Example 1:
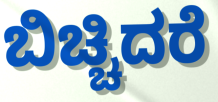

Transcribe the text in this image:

ಬಿಚ್ಚಿದರೆ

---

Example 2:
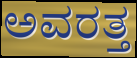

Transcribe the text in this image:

ಅವರತ್ತ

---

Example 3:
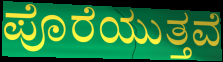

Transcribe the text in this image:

ಪೊರೆಯುತ್ತವೆ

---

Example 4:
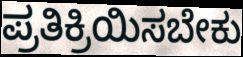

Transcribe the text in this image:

ಪ್ರತಿಕ್ರಿಯಿಸಬೇಕು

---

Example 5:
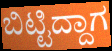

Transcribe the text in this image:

ಬಿಟ್ಟಿದ್ದಾಗ